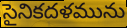
సైనికదళమును